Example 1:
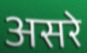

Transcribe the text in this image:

असरे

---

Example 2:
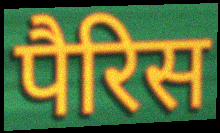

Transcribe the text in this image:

पैरिस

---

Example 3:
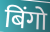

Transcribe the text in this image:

बिंगो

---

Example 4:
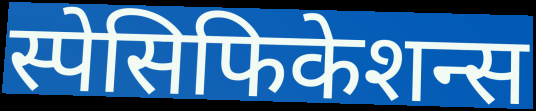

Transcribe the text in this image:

स्पेसिफिकेशन्स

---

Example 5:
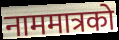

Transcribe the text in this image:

नाममात्रको